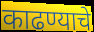
काढण्याचे